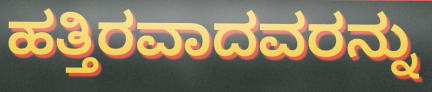
ಹತ್ತಿರವಾದವರನ್ನು